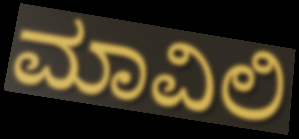
ಮಾವಿಲಿ